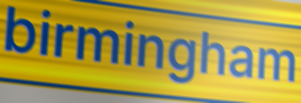
birmingham